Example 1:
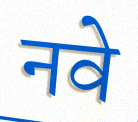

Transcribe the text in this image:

नवे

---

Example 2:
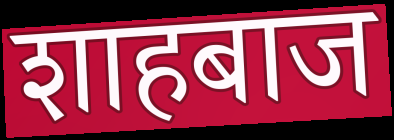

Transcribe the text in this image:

शाहबाज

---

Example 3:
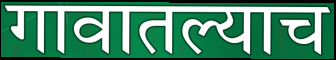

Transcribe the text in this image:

गावातल्याच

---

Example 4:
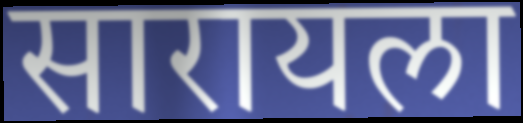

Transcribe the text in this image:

सारायला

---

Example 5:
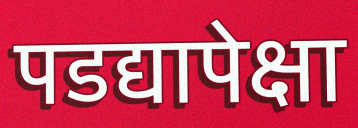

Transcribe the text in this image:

पडद्यापेक्षा